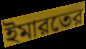
ইমারতের